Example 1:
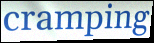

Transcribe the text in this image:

cramping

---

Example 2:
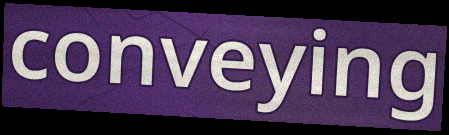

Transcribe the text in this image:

conveying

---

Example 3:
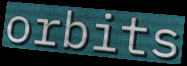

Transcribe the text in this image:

orbits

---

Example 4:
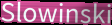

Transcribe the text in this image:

Slowinski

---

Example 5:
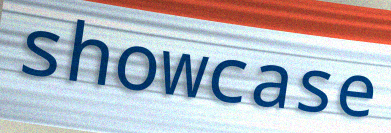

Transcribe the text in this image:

showcase